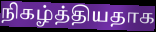
நிகழ்த்தியதாக